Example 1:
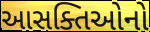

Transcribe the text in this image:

આસક્તિઓનો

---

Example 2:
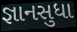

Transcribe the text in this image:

જ્ઞાનસુધા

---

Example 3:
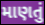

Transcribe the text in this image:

માણતું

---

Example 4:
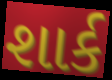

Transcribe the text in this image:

શાર્ક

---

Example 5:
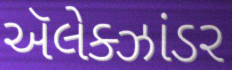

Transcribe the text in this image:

ઍલેક્ઝાંડર